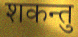
शकन्तु